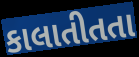
કાલાતીતતા